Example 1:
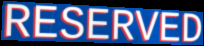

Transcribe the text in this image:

RESERVED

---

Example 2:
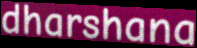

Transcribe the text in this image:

dharshana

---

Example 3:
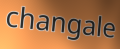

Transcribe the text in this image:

changale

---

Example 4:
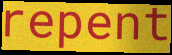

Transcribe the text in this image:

repent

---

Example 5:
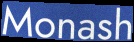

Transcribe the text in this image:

Monash